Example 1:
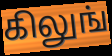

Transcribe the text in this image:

கிலுங்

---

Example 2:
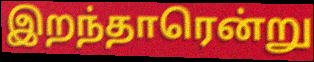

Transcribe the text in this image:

இறந்தாரென்று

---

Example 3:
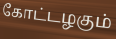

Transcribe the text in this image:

கோட்டழகும்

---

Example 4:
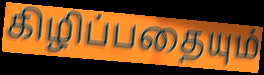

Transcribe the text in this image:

கிழிப்பதையும்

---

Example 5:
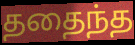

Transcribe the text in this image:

ததைந்த